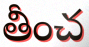
తీంచ